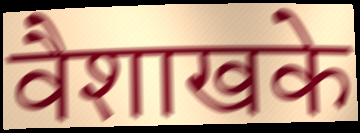
वैशाखके